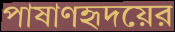
পাষাণহৃদয়ের